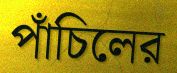
পাঁচিলের